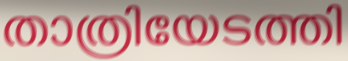
താത്രിയേടത്തി